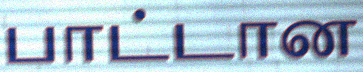
பாட்டான